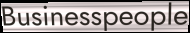
Businesspeople